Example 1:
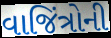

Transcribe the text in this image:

વાજિંત્રોની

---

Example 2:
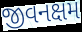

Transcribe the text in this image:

જીવનક્ષમ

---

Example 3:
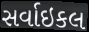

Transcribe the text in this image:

સર્વાઇકલ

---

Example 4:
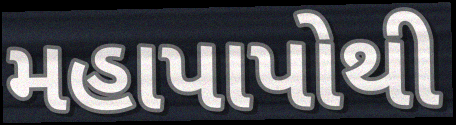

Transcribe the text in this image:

મહાપાપોથી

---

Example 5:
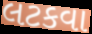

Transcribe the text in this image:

લટકવા